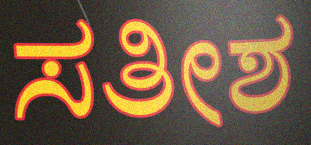
ಸತೀಶ